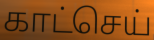
காட்செய்